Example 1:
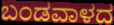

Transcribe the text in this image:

ಬಂಡವಾಳದ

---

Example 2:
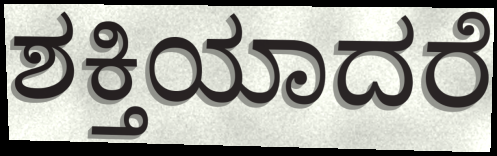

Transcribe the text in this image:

ಶಕ್ತಿಯಾದರೆ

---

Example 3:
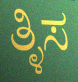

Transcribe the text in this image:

ತ್ಳಿಸ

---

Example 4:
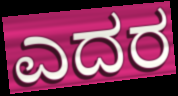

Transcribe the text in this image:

ಎದರ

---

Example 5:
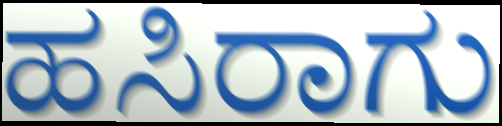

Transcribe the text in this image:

ಹಸಿರಾಗು